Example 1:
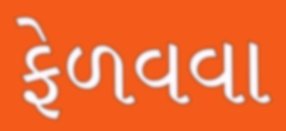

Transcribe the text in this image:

ફેળવવા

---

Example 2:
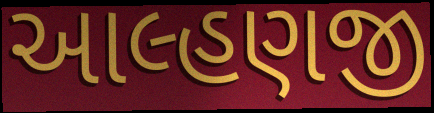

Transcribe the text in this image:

આલ્હણજી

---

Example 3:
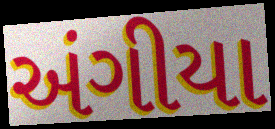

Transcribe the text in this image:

અંગીયા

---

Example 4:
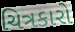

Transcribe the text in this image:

ચિત્રકારો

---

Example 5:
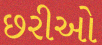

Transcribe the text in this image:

છરીઓ